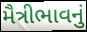
મૈત્રીભાવનું